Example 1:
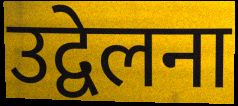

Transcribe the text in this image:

उद्वेलना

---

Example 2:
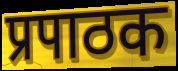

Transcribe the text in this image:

प्रपाठक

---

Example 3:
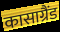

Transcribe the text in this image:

कासाग्रैंड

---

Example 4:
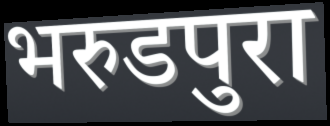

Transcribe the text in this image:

भरुडपुरा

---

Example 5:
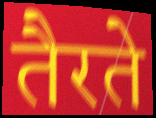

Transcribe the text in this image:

तैरते